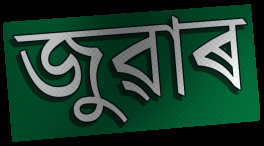
জুৱাৰ